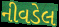
નીવડેલ